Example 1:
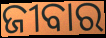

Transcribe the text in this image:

ଜୀବାର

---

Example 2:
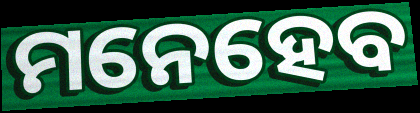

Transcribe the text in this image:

ମନେହେବ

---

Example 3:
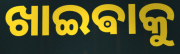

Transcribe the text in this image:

ଖାଇଵାକୁ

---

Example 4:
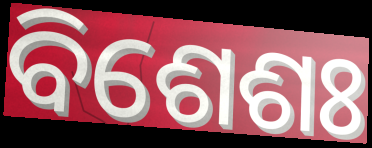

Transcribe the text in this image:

ବିଶେଶଃ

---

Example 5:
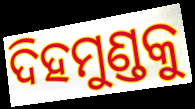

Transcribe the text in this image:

ଦିହମୁଣ୍ଡକୁ